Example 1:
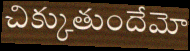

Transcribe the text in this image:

చిక్కుతుందేమో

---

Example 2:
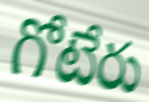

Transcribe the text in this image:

గోటేరు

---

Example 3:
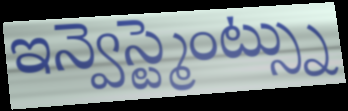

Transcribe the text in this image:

ఇన్వెస్ట్మెంట్స్ను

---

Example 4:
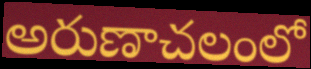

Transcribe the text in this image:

అరుణాచలంలో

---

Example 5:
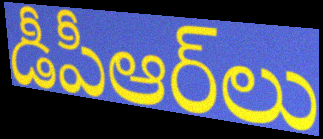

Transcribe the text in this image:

డీపీఆర్‌లు